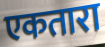
एकतारा